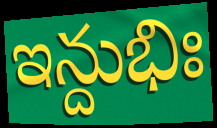
ఇన్దుభిః